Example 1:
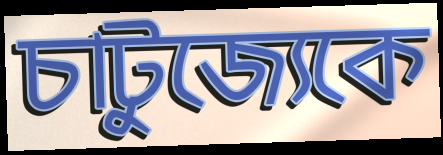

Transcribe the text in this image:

চাটুজ্যেকে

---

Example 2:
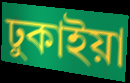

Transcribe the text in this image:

ঢুকাইয়া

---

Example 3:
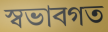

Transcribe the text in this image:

স্বভাবগত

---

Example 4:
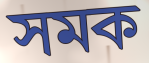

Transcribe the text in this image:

সমক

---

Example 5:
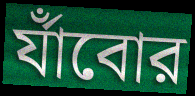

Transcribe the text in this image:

র্যাঁবোর